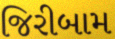
જિરીબામ